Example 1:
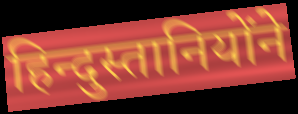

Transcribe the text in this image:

हिन्दुस्तानियोंने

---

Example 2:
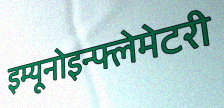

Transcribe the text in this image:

इम्यूनोइन्फ्लेमेटरी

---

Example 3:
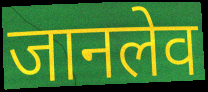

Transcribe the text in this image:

जानलेव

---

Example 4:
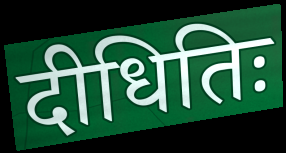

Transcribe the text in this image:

दीधितिः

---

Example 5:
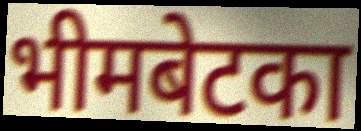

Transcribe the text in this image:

भीमबेटका